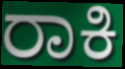
ರಾಕಿ